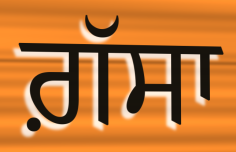
ਗ਼ੱਸਾ